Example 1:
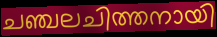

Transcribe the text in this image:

ചഞ്ചലചിത്തനായി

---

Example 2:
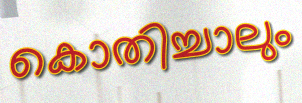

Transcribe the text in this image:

കൊതിച്ചാലും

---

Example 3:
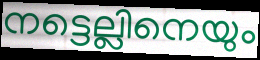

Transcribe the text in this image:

നട്ടെല്ലിനെയും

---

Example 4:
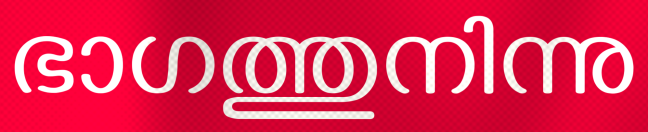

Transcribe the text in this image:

ഭാഗത്തുനിന്നു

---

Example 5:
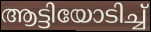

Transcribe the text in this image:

ആട്ടിയോടിച്ച്